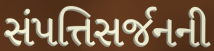
સંપત્તિસર્જનની